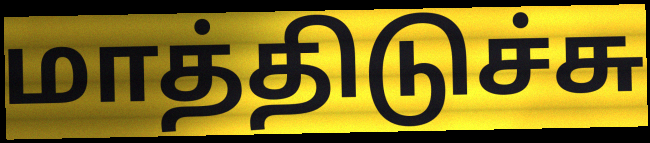
மாத்திடுச்சு